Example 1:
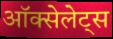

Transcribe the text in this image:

ऑक्सेलेट्स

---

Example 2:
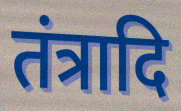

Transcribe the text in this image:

तंत्रादि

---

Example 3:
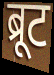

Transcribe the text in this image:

ब्रूट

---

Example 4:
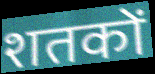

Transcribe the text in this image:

शतकों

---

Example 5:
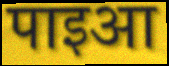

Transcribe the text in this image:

पाइआ